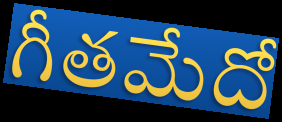
గీతమేదో